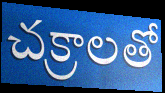
చక్రాలతో